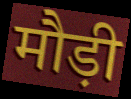
मौड़ी